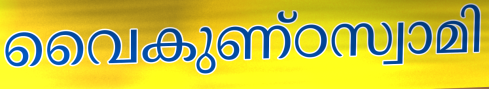
വൈകുണ്ഠസ്വാമി